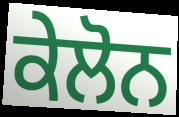
ਕੇਲੋਨ